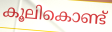
കൂലികൊണ്ട്